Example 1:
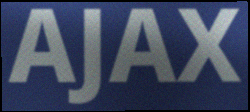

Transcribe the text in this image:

AJAX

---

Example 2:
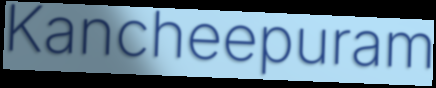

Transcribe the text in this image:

Kancheepuram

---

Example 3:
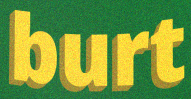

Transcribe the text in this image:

burt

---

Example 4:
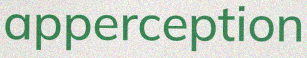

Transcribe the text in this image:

apperception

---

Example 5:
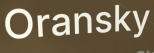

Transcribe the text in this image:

Oransky